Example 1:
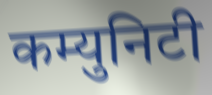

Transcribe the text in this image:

कम्युनिटी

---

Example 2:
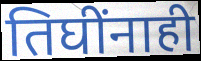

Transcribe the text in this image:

तिघींनाही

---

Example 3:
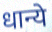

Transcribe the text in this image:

धान्ये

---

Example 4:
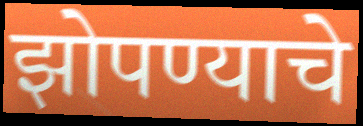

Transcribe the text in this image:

झोपण्याचे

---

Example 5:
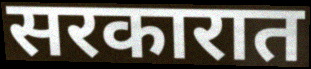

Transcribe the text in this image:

सरकारात